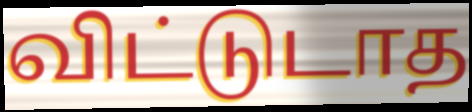
விட்டுடாத